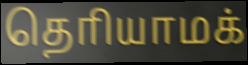
தெரியாமக்